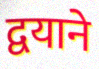
द्वयाने